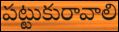
పట్టుకురావాలి